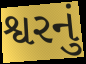
શ્વરનું